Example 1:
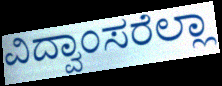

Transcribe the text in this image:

ವಿದ್ವಾಂಸರೆಲ್ಲಾ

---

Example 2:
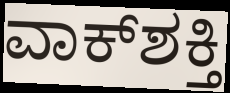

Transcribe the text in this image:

ವಾಕ್‌ಶಕ್ತಿ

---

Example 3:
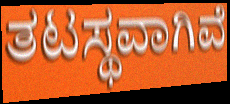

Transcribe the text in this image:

ತಟಸ್ಥವಾಗಿವೆ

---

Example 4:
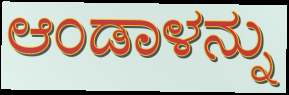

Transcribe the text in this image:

ಆಂಡಾಳನ್ನು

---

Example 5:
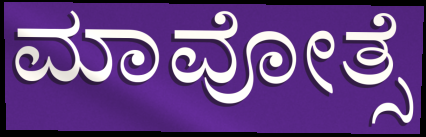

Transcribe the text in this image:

ಮಾವೋತ್ಸೆ